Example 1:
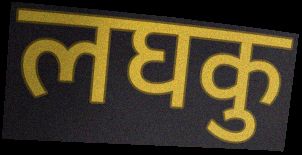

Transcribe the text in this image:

लघकु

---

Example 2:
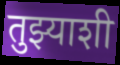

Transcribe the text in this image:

तुझ्याशी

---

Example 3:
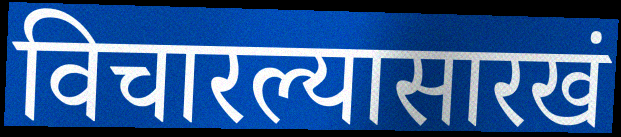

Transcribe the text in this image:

विचारल्यासारखं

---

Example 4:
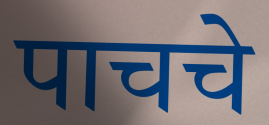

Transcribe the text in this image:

पाचचे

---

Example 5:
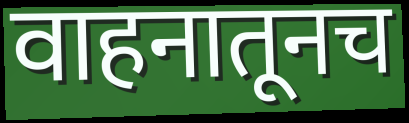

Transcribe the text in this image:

वाहनातूनच